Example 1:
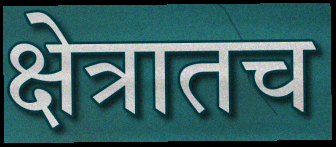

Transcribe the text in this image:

क्षेत्रातच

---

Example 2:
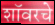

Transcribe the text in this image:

शॉवरचे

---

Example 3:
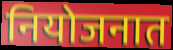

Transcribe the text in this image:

नियोजनात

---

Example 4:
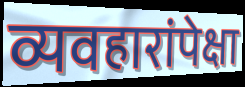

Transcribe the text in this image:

व्यवहारांपेक्षा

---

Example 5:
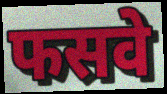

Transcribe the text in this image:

फसवे